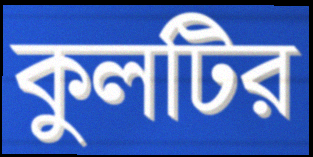
কুলটির